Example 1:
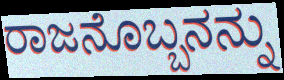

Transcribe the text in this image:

ರಾಜನೊಬ್ಬನನ್ನು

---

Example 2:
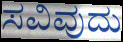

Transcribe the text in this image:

ಸವಿವುದು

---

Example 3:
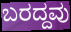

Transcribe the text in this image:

ಬರದ್ದವು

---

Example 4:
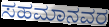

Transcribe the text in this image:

ಸಹಮಾನವರ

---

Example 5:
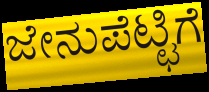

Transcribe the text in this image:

ಜೇನುಪೆಟ್ಟಿಗೆ